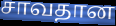
சாவதான